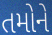
તમોને